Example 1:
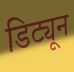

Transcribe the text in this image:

डिट्यून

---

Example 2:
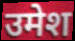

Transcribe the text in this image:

उमेश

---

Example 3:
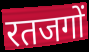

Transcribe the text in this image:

रतजगों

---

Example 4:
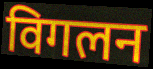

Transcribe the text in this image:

विगलन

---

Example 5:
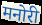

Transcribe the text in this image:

मनोरी